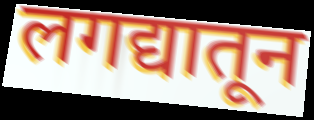
लगद्यातून